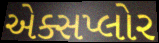
એક્સપ્લોર